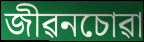
জীৱনচোৱা